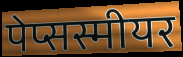
पेप्सस्मीयर